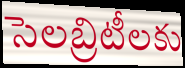
సెలబ్రిటీలకు